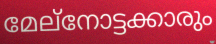
മേല്നോട്ടക്കാരും